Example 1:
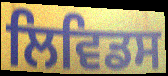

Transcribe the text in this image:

ਲਿਵਿਡਸ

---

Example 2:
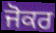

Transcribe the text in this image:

ਜੋਕਰ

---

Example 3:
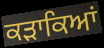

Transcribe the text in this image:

ਕੜਾਕਿਆਂ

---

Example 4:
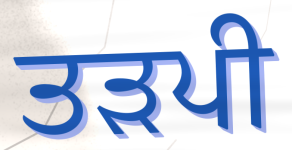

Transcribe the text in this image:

ਤੜਪੀ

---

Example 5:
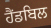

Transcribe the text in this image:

ਹੈਂਡਬਿਲ